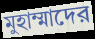
মুহাম্মাদের